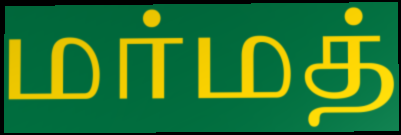
மர்மத்